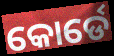
କୋର୍ଡେ